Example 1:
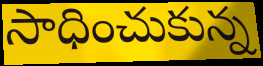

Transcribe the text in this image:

సాధించుకున్న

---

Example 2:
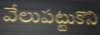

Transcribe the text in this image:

వేలుపట్టుకొని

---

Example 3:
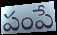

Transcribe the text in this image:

పంపే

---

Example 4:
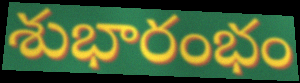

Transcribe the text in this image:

శుభారంభం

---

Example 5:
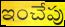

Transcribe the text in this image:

ఇంచేపు